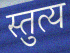
स्तुत्य